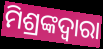
ମିଶ୍ରଙ୍କଦ୍ୱାରା